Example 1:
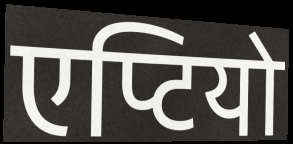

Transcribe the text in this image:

एप्टियो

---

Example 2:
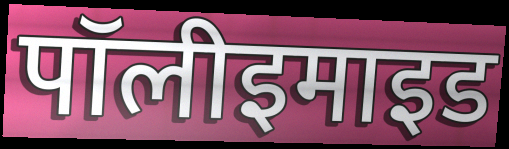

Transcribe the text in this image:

पॉलीइमाइड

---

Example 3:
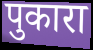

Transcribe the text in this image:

पुकारा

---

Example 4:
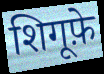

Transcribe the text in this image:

शिगूफ़े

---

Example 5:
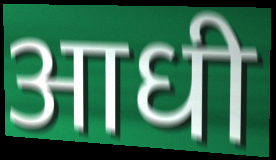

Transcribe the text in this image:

आधी